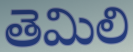
తెమిలి